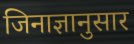
जिनाज्ञानुसार